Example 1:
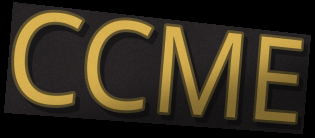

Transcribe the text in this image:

CCME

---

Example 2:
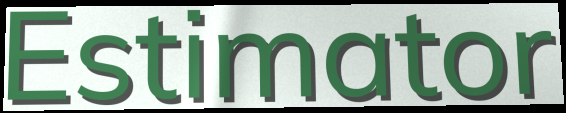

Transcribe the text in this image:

Estimator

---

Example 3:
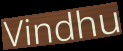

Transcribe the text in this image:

Vindhu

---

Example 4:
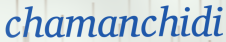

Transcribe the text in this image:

chamanchidi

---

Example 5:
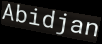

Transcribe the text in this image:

Abidjan